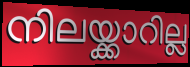
നിലയ്ക്കാറില്ല